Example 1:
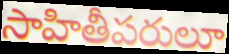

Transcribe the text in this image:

సాహితీపరులూ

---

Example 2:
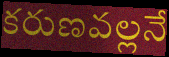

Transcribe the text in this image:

కరుణవల్లనే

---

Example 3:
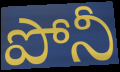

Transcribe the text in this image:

పోనీ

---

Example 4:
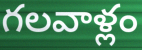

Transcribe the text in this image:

గలవాళ్లం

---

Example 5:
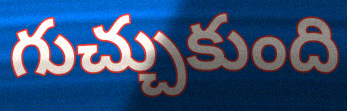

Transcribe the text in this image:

గుచ్చుకుంది